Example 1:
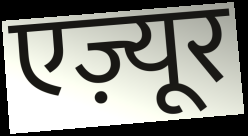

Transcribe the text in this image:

एज़्यूर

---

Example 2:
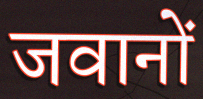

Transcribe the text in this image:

जवानों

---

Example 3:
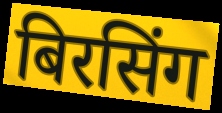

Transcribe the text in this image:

बिरसिंग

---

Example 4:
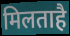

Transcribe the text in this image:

मिलताहै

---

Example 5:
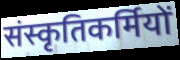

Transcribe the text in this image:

संस्कृतिकर्मियों